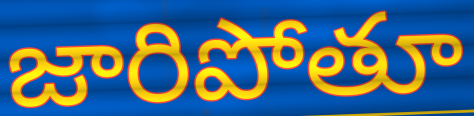
జారిపోతూ